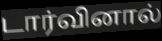
டார்வினால்